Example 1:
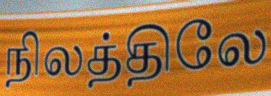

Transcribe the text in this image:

நிலத்திலே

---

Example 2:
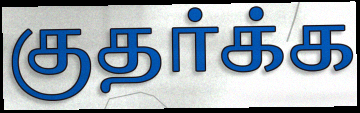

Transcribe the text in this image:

குதர்க்க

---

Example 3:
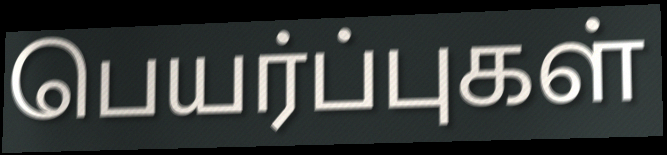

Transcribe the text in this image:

பெயர்ப்புகள்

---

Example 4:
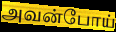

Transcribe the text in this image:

அவன்போய்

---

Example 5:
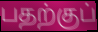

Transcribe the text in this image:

பதற்குப்